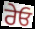
ਰੇਓ